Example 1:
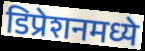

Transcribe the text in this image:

डिप्रेशनमध्ये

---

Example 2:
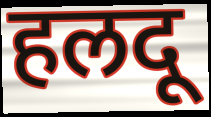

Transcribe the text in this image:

हलदू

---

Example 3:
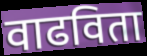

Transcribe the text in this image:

वाढविता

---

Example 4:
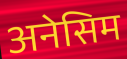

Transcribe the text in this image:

अनेसिम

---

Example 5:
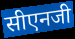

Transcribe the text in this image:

सीएनजी